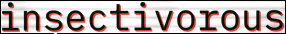
insectivorous